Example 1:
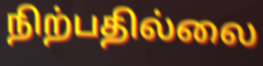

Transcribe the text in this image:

நிற்பதில்லை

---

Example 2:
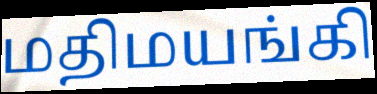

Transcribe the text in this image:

மதிமயங்கி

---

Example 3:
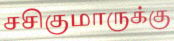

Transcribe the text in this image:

சசிகுமாருக்கு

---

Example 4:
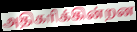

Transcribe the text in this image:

அதிகரிக்கின்றன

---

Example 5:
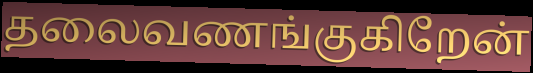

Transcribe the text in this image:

தலைவணங்குகிறேன்